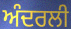
ਅੰਦਰਲੀ